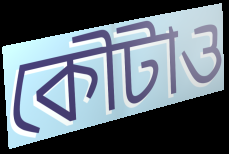
কৌটাও